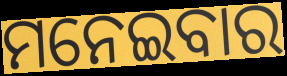
ମନେଇବାର